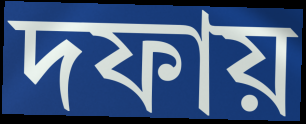
দফায়